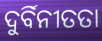
ଦୁର୍ବିନୀତତା